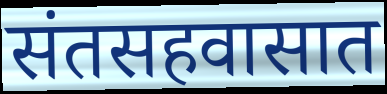
संतसहवासात